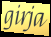
girja